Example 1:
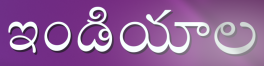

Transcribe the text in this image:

ఇండియాల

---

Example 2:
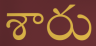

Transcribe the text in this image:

శారు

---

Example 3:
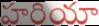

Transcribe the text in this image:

హరియా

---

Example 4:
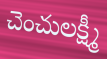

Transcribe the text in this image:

చెంచులక్ష్మీ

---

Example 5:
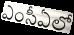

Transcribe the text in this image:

ఎంసీఏలో